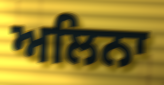
ਅਲਿਨਾ